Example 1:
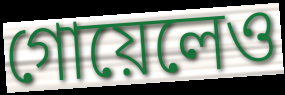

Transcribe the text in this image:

গোয়েলেও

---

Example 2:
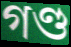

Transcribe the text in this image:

গণ্ড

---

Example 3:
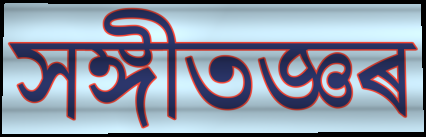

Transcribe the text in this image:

সঙ্গীতজ্ঞৰ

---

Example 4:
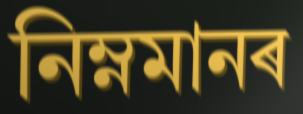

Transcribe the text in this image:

নিম্নমানৰ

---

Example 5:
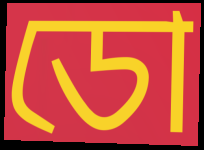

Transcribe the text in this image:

ডো